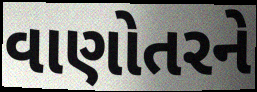
વાણોતરને